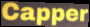
Capper